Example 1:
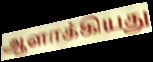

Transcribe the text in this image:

ஆளாக்கியது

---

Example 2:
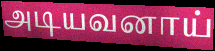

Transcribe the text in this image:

அடியவனாய்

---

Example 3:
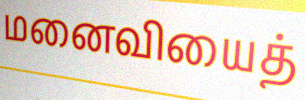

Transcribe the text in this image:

மனைவியைத்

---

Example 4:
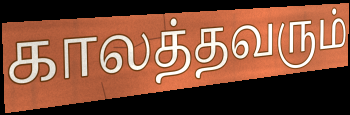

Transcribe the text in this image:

காலத்தவரும்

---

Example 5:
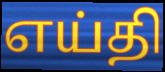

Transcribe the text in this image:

எய்தி